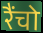
रैंचो